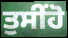
ਤੁਸੀਂਹੋ